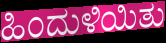
ಹಿಂದುಳಿಯಿತು